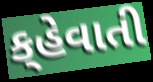
ક્‌હેવાતી